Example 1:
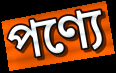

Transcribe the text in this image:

পণ্যে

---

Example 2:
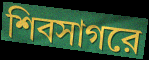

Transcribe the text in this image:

শিবসাগরে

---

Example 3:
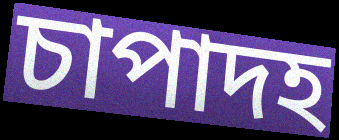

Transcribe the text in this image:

চাপাদহ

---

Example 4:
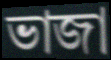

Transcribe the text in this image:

ভাজা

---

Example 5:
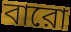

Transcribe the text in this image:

বারো